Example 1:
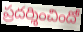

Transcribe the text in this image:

ప్రదర్శించిందో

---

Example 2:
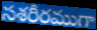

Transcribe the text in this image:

సశరీరముగా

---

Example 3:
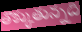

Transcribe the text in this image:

తొక్కుతున్నది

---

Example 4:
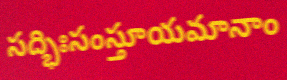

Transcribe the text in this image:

సద్భిఃసంస్తూయమానాం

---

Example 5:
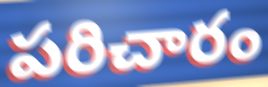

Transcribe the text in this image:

పరిచారం